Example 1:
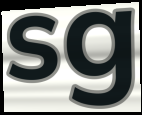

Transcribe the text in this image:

sg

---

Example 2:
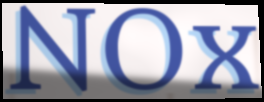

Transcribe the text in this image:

NOx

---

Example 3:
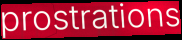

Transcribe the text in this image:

prostrations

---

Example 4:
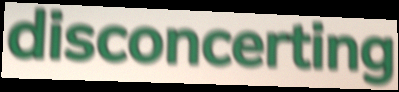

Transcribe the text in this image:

disconcerting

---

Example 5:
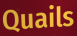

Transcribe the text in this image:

Quails